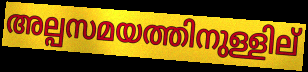
അല്പസമയത്തിനുള്ളില്